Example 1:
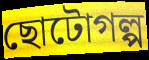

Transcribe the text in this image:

ছোটোগল্প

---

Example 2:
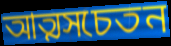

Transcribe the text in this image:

আত্মসচেতন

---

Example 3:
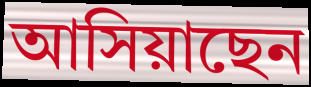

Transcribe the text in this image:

আসিয়াছেন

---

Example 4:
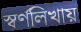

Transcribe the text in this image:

স্বর্ণলিখায়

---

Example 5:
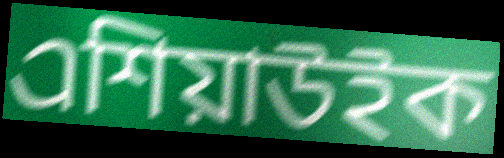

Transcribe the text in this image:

এশিয়াউইক